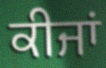
ਕੀਜਾਂ